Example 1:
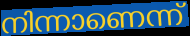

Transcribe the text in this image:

നിന്നാണെന്ന്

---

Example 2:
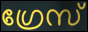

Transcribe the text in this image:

ഗ്രേസ്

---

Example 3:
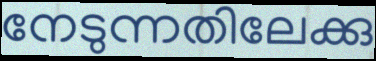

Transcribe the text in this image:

നേടുന്നതിലേക്കു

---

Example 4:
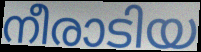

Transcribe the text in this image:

നീരാടിയ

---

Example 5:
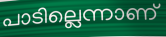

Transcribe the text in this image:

പാടില്ലെന്നാണ്